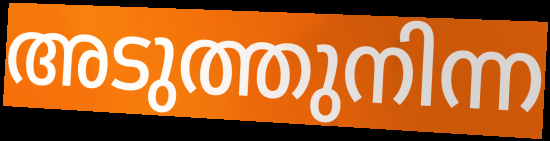
അടുത്തുനിന്ന